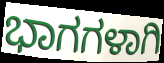
ಭಾಗಗಳಾಗಿ